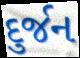
દુર્જન